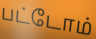
பட்டோம்